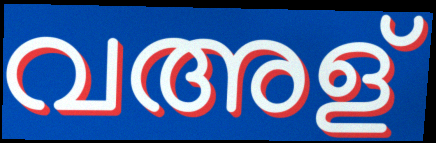
വഅള്